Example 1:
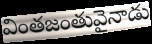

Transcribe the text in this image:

వింతజంతువైనాడు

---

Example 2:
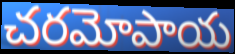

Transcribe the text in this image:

చరమోపాయ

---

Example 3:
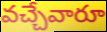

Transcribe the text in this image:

వచ్చేవారూ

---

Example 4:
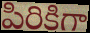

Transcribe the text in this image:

పిరికిగా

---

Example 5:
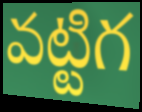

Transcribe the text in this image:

వట్టిగ